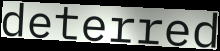
deterred